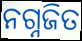
ନଗ୍ନଜିତ